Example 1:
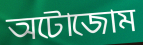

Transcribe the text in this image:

অটোজোম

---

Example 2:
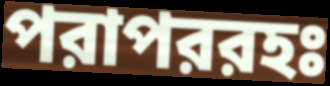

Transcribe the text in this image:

পরাপররহঃ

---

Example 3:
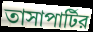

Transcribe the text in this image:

তাসাপার্টির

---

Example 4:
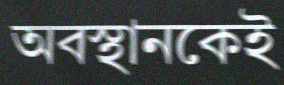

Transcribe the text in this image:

অবস্থানকেই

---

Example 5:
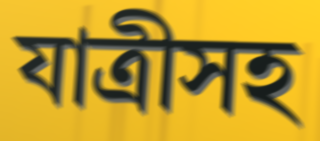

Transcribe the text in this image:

যাত্রীসহ